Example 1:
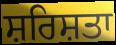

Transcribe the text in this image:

ਸ਼ਰਿਸ਼ਤਾ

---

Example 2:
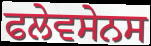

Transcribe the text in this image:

ਫਲੇਵਸੇਨਸ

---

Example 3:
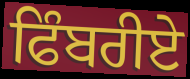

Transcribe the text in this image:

ਫਿੰਬਰੀਏ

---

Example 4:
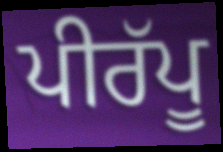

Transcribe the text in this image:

ਪੀਰੱਪੂ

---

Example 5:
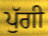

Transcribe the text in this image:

ਪੁੱਗੀ